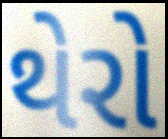
થેરો